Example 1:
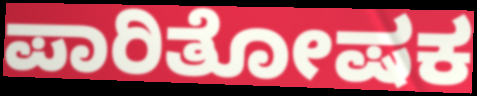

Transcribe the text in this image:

ಪಾರಿತೋಷಕ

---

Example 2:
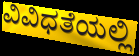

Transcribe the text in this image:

ವಿವಿಧತೆಯಲ್ಲಿ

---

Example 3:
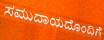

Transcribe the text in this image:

ಸಮುದಾಯದೊಂದಿಗೆ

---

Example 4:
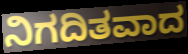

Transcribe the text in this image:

ನಿಗದಿತವಾದ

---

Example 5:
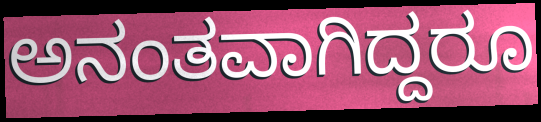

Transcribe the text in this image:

ಅನಂತವಾಗಿದ್ದರೂ